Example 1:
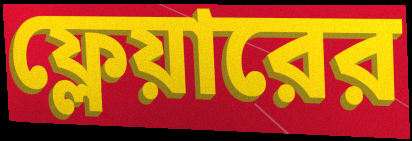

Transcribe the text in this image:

ফ্লেয়ারের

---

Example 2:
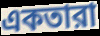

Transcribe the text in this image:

একতারা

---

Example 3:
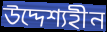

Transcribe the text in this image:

উদ্দেশ্যহীন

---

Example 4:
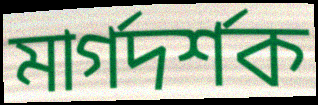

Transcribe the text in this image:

মার্গদর্শক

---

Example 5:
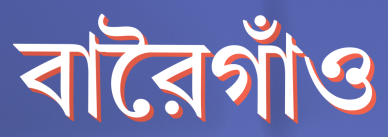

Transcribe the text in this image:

বারৈগাঁও